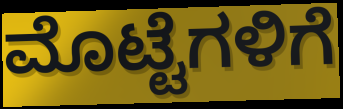
ಮೊಟ್ಟೆಗಳಿಗೆ